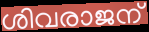
ശിവരാജന്